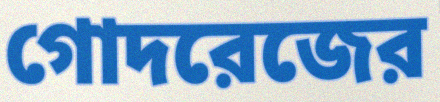
গোদরেজের